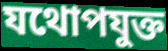
যথোপযুক্ত